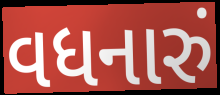
વધનારું